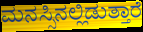
ಮನಸ್ಸಿನಲ್ಲಿಡುತ್ತಾರೆ